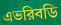
এভরিবডি